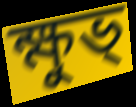
ক্ষুভ্